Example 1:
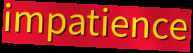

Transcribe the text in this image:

impatience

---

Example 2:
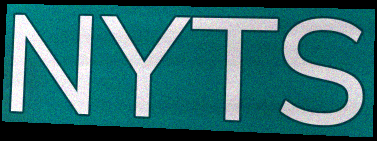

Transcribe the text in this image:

NYTS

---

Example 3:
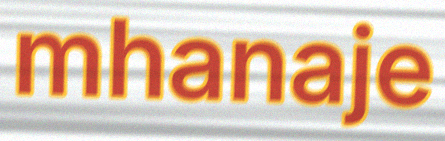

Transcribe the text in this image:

mhanaje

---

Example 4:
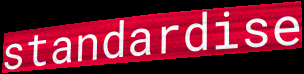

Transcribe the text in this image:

standardise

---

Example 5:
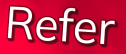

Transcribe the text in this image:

Refer